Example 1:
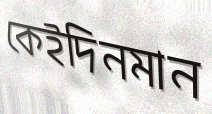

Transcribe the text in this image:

কেইদিনমান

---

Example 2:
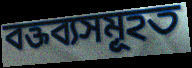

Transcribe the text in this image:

বক্তব্যসমূহত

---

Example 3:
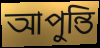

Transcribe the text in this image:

আপুন্তি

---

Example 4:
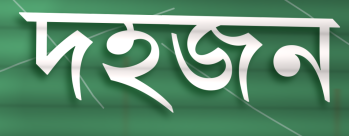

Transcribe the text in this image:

দহজন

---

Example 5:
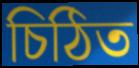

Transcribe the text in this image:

চিঠিত